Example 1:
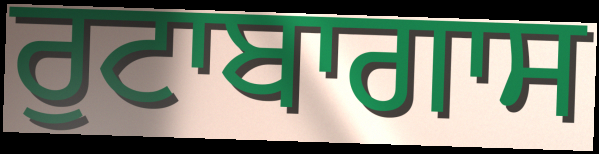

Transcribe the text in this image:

ਰੁਟਾਬਾਗਾਸ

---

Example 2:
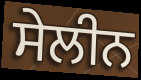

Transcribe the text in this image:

ਸੇਲੀਨ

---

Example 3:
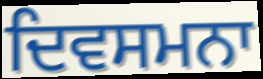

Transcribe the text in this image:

ਦਿਵਸਮਨਾ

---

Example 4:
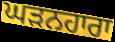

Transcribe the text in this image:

ਘੜਨਹਾਰਾ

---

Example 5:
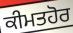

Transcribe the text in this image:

ਕੀਮਤਹੋਰ